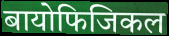
बायोफिजिकल